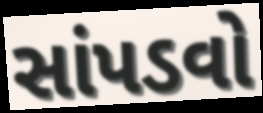
સાંપડવો